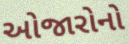
ઓજારોનો